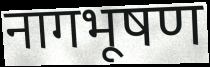
नागभूषण